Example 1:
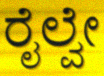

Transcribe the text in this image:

ರೈಲ್ವೇ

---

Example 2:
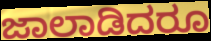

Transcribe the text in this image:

ಜಾಲಾಡಿದರೂ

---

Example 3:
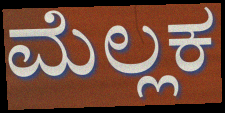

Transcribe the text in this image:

ಮೆಲ್ಲಕ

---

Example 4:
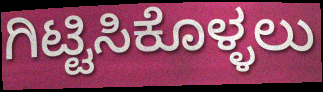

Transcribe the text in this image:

ಗಿಟ್ಟಿಸಿಕೊಳ್ಳಲು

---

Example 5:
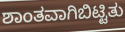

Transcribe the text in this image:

ಶಾಂತವಾಗಿಬಿಟ್ಟಿತು